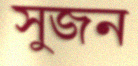
সুজন